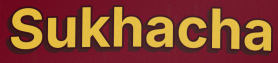
Sukhacha